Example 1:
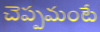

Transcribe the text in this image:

చెప్పమంటే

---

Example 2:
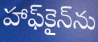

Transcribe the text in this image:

హాఫ్‌కైన్‌ను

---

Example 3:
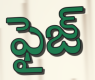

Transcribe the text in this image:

ఫైజ్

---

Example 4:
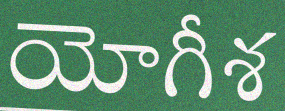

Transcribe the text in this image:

యోగీశ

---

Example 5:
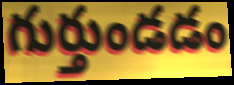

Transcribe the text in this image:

గుర్తుండడం